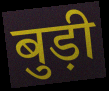
बुड़ी